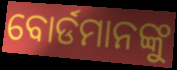
ବୋର୍ଡମାନଙ୍କୁ